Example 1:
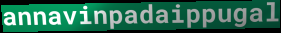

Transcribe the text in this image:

annavinpadaippugal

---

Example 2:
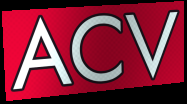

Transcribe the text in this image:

ACV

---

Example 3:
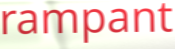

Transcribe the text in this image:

rampant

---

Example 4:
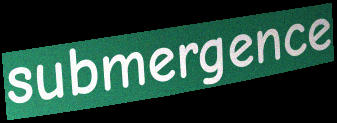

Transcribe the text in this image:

submergence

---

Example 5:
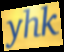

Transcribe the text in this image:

yhk